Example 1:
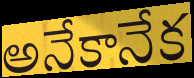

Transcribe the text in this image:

అనేకానేక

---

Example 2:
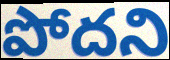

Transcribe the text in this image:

పోదని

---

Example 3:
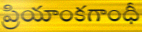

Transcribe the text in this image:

ప్రియాంకగాంధీ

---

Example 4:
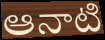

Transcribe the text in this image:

ఆనాటి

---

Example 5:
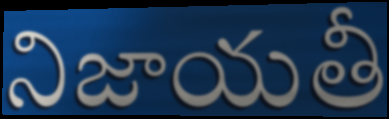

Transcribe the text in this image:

నిజాయతీ